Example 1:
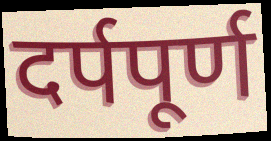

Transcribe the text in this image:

दर्पपूर्ण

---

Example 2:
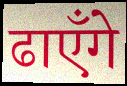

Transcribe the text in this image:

ढाएँगे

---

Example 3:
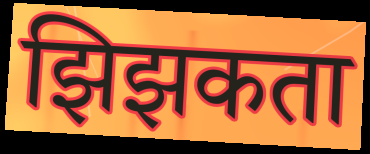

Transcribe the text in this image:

झिझकता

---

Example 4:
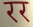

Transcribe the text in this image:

रर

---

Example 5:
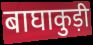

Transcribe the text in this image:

बाघाकुड़ी